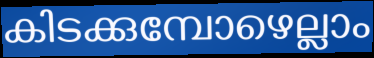
കിടക്കുമ്പോഴെല്ലാം